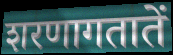
शरणागतातें